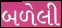
બળેલી